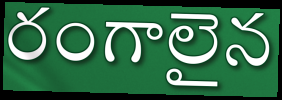
రంగాలైన